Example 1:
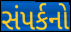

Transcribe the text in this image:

સંપર્કનો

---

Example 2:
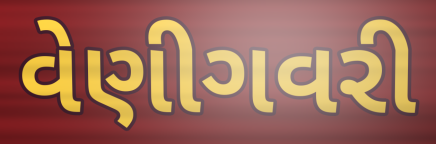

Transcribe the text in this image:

વેણીગવરી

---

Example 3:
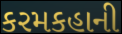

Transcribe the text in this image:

કરમકહાની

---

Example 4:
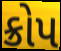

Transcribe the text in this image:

ક્રોપ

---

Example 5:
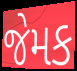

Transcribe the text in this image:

જેમક